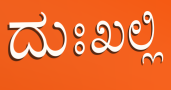
ದುಃಖಲ್ಲಿ